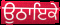
ਉਠਾਇਕੇ